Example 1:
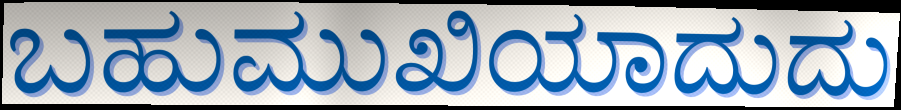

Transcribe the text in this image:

ಬಹುಮುಖಿಯಾದುದು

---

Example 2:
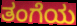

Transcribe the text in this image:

ತಂಗೆಯ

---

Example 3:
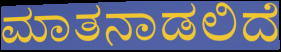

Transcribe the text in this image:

ಮಾತನಾಡಲಿದೆ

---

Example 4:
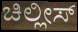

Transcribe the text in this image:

ಚಿಲ್ಲೀಸ್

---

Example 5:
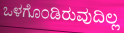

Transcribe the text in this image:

ಒಳಗೊಂಡಿರುವುದಿಲ್ಲ